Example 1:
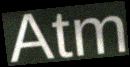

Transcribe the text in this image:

Atm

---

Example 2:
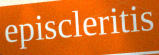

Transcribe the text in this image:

episcleritis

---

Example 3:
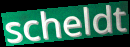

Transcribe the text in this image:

scheldt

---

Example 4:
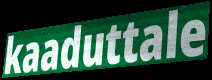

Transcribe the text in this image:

kaaduttale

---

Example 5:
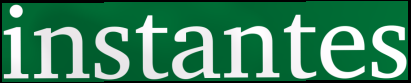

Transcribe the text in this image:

instantes